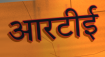
आरटीई